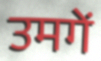
उमगें